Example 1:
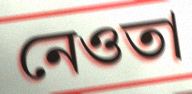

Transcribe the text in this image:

নেওতা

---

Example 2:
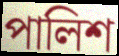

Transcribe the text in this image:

পালিশ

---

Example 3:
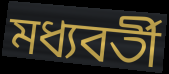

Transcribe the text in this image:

মধ্যবৰ্তী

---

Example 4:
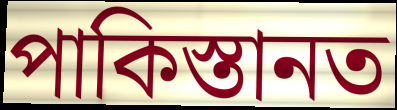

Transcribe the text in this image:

পাকিস্তানত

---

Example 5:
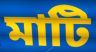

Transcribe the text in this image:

মাটি